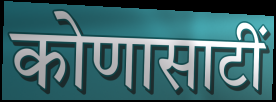
कोणासाटीं